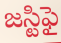
జస్టిఫై